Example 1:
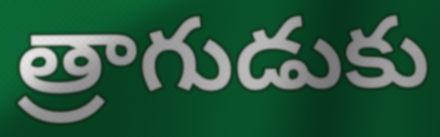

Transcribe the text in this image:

త్రాగుడుకు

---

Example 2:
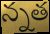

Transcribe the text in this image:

న్నత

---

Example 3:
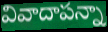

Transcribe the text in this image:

వివాదాపన్నా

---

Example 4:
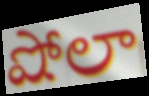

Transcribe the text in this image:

షోలా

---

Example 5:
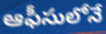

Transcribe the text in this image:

ఆఫీసులోనే